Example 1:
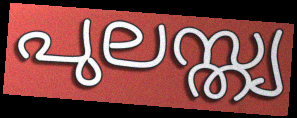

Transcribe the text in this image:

പുലസ്ത്യ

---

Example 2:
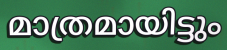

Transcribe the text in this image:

മാത്രമായിട്ടും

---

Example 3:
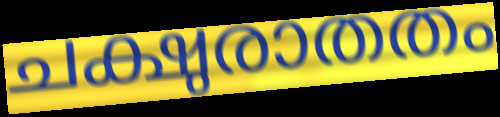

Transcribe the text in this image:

ചക്ഷുരാതതം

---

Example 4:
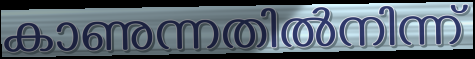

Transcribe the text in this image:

കാണുന്നതിൽനിന്ന്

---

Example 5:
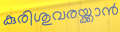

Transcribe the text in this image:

കുരിശുവരയ്ക്കാൻ